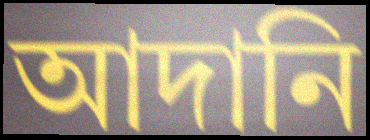
আদানি